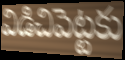
విడిచిపెట్టకు